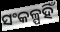
ସଂକଳ୍ପହିଁ